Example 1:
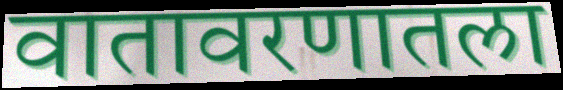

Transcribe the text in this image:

वातावरणातला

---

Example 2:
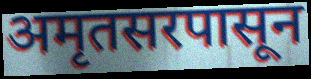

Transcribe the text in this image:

अमृतसरपासून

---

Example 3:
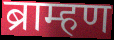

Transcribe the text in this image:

ब्राम्हण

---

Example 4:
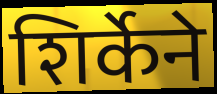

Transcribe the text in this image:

शिर्केने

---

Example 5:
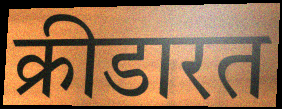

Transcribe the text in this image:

क्रीडारत